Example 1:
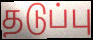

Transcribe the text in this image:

தடுப்பு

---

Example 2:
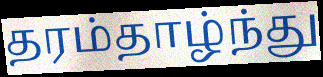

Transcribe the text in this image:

தரம்தாழ்ந்து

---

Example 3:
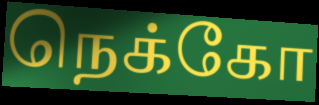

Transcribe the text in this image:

நெக்கோ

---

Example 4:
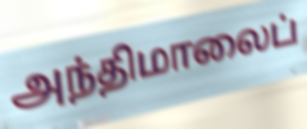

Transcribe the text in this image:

அந்திமாலைப்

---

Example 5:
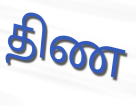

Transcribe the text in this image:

திண